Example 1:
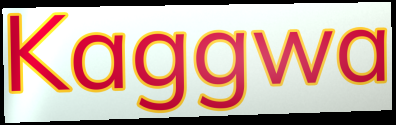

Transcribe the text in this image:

Kaggwa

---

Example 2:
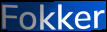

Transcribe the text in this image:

Fokker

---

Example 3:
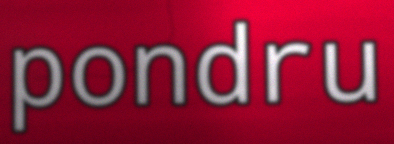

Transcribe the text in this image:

pondru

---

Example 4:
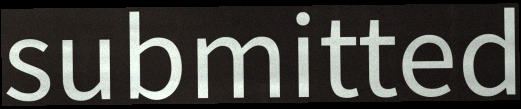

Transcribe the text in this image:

submitted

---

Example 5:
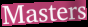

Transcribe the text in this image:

Masters